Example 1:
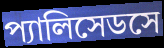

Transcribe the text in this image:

প্যালিসেডসে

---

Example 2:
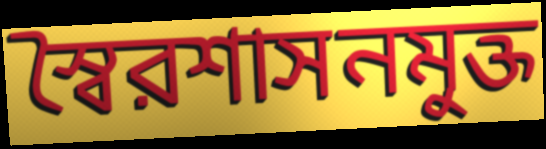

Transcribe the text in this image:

স্বৈরশাসনমুক্ত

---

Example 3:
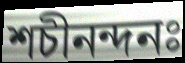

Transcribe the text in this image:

শচীনন্দনঃ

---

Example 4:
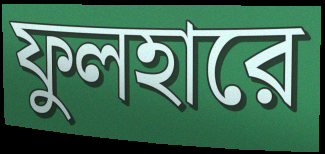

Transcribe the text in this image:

ফুলহারে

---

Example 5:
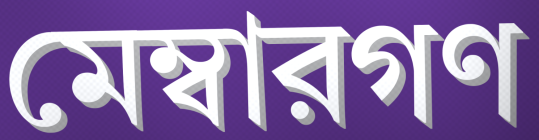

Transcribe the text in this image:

মেম্বারগণ